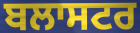
ਬਲਾਸਟਰ